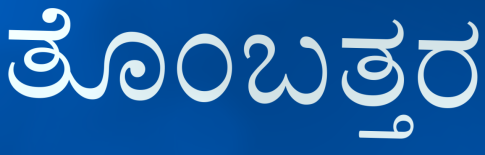
ತೊಂಬತ್ತರ